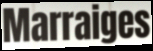
Marraiges